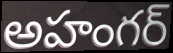
అహంగర్